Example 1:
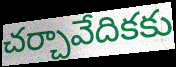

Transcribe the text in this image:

చర్చావేదికకు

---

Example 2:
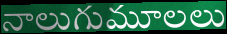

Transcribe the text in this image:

నాలుగుమూలలు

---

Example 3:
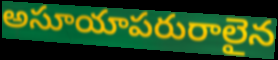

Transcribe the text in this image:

అసూయాపరురాలైన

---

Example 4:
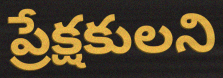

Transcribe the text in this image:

ప్రేక్షకులని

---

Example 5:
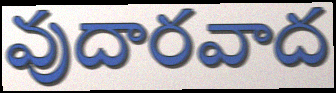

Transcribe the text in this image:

వుదారవాద